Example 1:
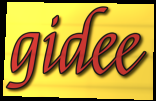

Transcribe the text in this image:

gidee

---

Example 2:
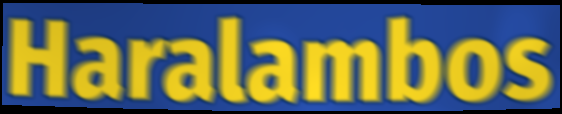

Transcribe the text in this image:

Haralambos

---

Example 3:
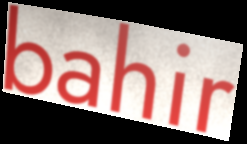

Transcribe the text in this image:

bahir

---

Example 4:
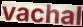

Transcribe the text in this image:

vachal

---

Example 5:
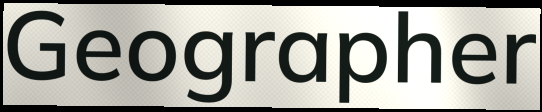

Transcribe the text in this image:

Geographer